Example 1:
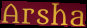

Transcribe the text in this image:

Arsha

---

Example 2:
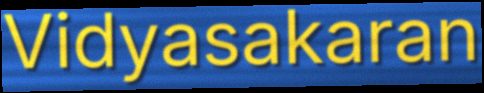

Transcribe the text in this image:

Vidyasakaran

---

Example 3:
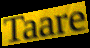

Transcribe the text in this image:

Taare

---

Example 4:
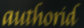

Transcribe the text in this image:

authorid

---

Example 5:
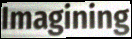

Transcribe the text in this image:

Imagining